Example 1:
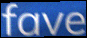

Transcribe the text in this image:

fave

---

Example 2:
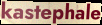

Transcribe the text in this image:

kastephale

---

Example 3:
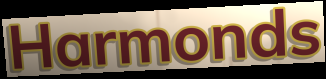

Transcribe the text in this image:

Harmonds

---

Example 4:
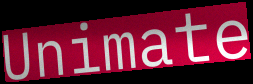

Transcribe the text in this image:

Unimate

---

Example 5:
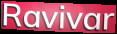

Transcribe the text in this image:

Ravivar